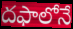
దఫాలోనే